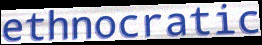
ethnocratic